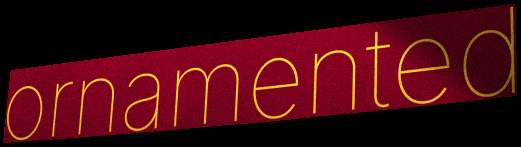
ornamented